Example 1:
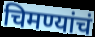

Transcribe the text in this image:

चिमण्यांचं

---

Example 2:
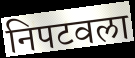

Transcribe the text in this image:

निपटवला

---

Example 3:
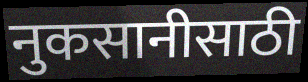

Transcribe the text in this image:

नुकसानीसाठी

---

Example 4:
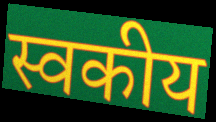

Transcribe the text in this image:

स्वकीय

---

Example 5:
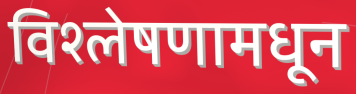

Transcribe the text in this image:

विश्लेषणामधून